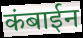
कंबाईन